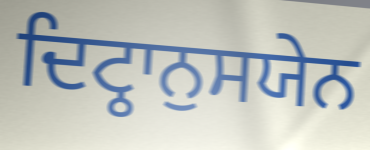
ਦਿਟ੍ਠਾਨੁਸਯੇਨ